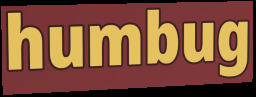
humbug